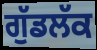
ਗੁੱਡਲੱਕ